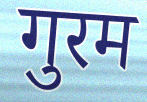
गुरम